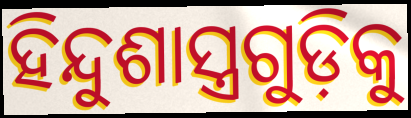
ହିନ୍ଦୁଶାସ୍ତ୍ରଗୁଡ଼ିକୁ